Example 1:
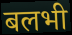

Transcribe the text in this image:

बलभी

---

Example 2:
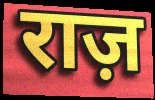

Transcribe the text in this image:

राज़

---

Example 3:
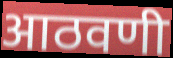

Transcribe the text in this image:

आठवणी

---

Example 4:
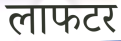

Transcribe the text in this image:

लाफटर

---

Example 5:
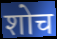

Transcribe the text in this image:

शोच